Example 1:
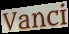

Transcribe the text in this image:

Vanci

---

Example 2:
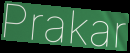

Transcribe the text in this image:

Prakar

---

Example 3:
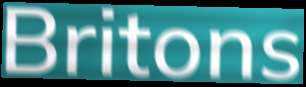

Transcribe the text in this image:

Britons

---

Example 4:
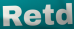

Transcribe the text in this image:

Retd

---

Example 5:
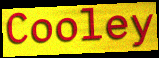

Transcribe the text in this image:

Cooley